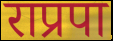
राप्रपा